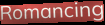
Romancing